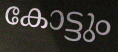
കോട്ടും